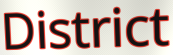
District